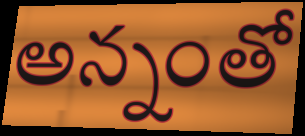
అన్నంతో